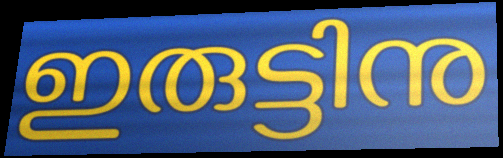
ഇരുട്ടിനു